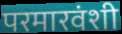
परमारवंशी